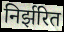
निर्झरित